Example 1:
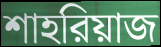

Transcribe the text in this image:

শাহরিয়াজ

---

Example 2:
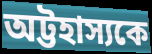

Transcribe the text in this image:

অট্টহাস্যকে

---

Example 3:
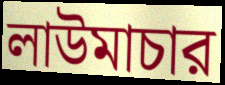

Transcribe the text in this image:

লাউমাচার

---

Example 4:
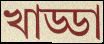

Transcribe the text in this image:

খাড্ডা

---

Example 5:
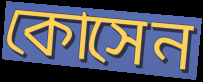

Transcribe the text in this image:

কোসেন